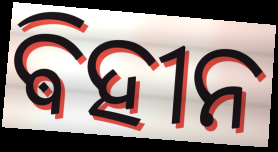
ଵିହୀନ